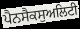
ਪੈਨਸੈਕਸੁਅਲਿਟੀ